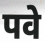
पवे